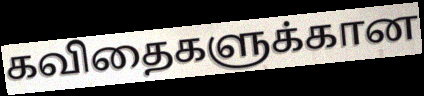
கவிதைகளுக்கான